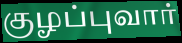
குழப்புவார்